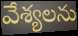
వేశ్యలను